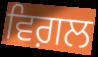
ਵਿਗ਼ਲ